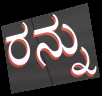
ರನ್ನು